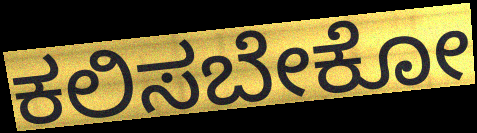
ಕಲಿಸಬೇಕೋ